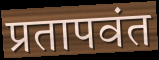
प्रतापवंत